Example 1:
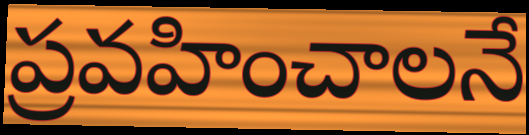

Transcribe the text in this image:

ప్రవహించాలనే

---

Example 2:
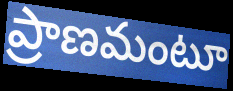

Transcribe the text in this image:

ప్రాణమంటూ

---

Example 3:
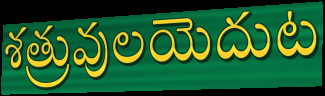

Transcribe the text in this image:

శత్రువులయెదుట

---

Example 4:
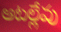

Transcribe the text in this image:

ఆటల్లేవు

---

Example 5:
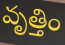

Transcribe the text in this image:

వృత్తిం